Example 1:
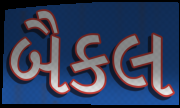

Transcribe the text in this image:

બૈકલ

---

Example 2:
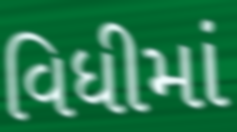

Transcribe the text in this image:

વિધીમાં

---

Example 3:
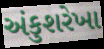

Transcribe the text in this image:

અંકુશરેખા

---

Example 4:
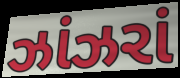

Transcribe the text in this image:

ઝાંઝરાં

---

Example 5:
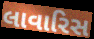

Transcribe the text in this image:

લાવારિસ